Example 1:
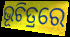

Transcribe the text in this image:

ଭୂଚିତ୍ରରେ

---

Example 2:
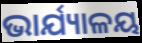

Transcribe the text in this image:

ଭାର୍ଯ୍ୟାଳୟ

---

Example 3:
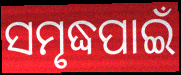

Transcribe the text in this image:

ସମୃଦ୍ଧପାଇଁ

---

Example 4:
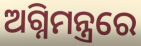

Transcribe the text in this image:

ଅଗ୍ନିମନ୍ତ୍ରରେ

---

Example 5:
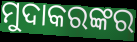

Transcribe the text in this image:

ମୁଦାକରଙ୍କର